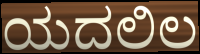
ಯದಲಿಲ